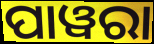
ପାୱରା